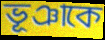
ভূঞাকে